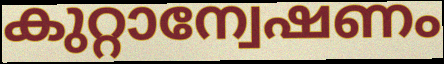
കുറ്റാന്വേഷണം